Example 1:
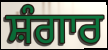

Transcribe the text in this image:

ਸ਼ੰਗਾਰ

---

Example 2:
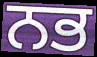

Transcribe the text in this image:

ਨਭ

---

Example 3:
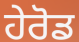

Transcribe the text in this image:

ਹੇਰੋਡ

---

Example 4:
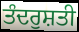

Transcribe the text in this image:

ਤੰਦਰੁਸ਼ਤੀ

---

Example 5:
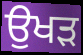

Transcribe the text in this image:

ਉਖੜ